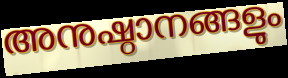
അനുഷ്ഠാനങ്ങളും